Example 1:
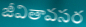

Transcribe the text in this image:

జీవితావసర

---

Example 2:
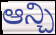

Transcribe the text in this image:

ఆన్చి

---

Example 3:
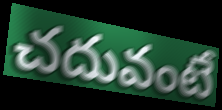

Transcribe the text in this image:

చదువంటే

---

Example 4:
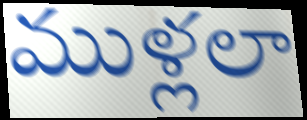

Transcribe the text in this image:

ముళ్లలా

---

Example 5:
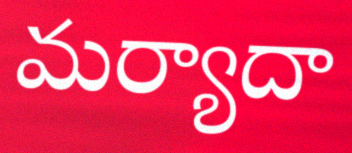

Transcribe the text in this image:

మర్యాదా